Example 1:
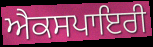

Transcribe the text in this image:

ਐਕਸਪਾਇਰੀ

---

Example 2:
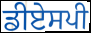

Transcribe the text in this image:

ਡੀਏਸਪੀ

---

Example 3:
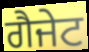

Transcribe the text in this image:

ਗੈਜੇਟ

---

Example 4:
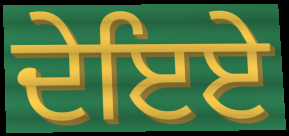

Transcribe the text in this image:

ਦੇਇਏ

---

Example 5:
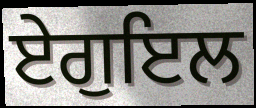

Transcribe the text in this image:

ਏਗੁਇਲ